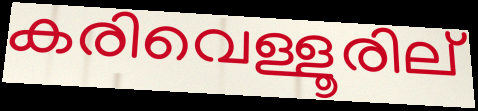
കരിവെള്ളൂരില്